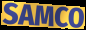
SAMCO